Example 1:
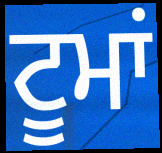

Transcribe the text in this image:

ਟੂਮਾਂ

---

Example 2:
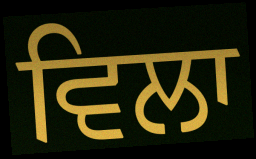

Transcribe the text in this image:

ਵਿਲਾ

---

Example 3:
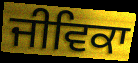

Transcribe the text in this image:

ਜੀਵਿਕਾ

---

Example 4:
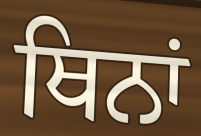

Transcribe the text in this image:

ਥਿਨਾਂ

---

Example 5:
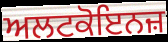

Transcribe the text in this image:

ਅਲਟਕੋਇਨਜ਼